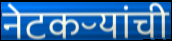
नेटकऱ्यांची